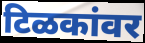
टिळकांवर